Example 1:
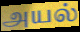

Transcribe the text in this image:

அயல்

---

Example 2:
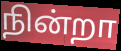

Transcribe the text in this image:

நின்றா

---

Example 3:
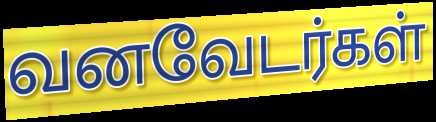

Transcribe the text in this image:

வனவேடர்கள்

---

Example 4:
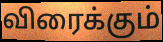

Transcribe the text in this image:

விரைக்கும்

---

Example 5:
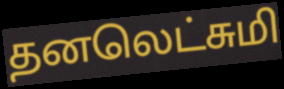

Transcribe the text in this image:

தனலெட்சுமி